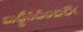
బుట్టినదింబలెఁ